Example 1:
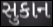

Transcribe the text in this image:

સુકાન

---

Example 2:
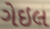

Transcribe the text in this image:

ગેઇલ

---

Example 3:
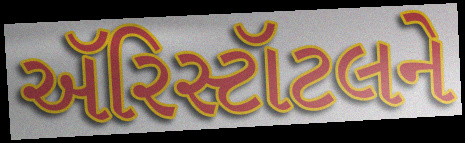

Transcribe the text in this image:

ઍરિસ્ટૉટલને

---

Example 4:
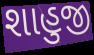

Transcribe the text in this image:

શાહુજી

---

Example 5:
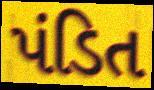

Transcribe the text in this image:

પંડિત